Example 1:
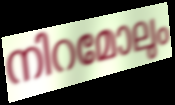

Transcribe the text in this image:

നിറമോലും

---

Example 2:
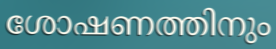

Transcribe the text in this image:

ശോഷണത്തിനും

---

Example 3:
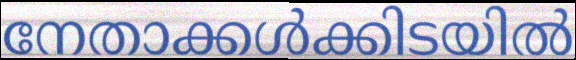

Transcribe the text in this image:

നേതാക്കൾക്കിടയിൽ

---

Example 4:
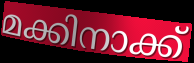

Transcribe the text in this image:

മക്കിനാക്ക്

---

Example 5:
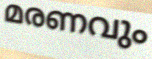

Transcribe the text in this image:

മരണവും